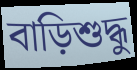
বাড়িশুদ্ধু